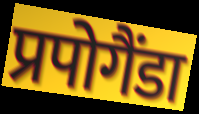
प्रपोगैंडा